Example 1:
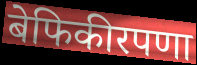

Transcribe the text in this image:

बेफिकीरपणा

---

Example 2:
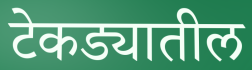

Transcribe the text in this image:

टेकड्यातील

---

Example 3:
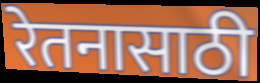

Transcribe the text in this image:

रेतनासाठी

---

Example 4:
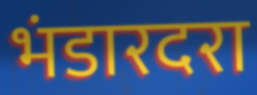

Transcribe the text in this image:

भंडारदरा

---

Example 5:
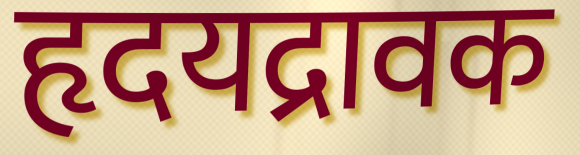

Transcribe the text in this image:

हृदयद्रावक